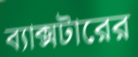
ব্যাক্সটারের